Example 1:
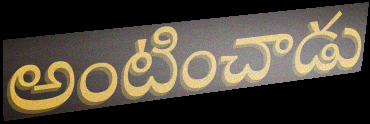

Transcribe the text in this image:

అంటించాడు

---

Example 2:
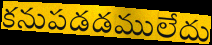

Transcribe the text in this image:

కనుపడడములేదు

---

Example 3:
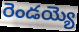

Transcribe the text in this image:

రెండయ్యె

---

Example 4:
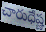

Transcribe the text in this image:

చారుధేష్ణ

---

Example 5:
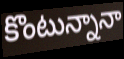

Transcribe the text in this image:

కొంటున్నానా